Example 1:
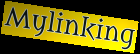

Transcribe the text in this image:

Mylinking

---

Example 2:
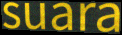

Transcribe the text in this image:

suara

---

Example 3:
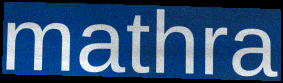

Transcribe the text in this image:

mathra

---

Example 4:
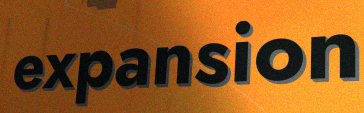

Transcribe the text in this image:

expansion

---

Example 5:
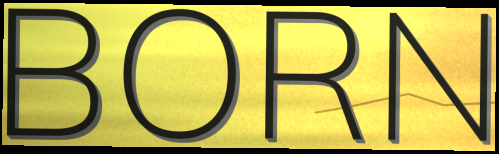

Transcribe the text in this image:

BORN